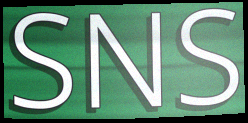
SNS